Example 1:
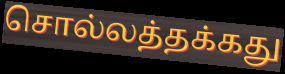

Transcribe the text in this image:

சொல்லத்தக்கது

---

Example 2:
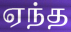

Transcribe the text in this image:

ஏந்த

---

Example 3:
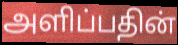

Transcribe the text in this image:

அளிப்பதின்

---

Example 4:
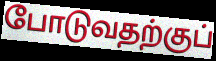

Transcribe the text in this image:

போடுவதற்குப்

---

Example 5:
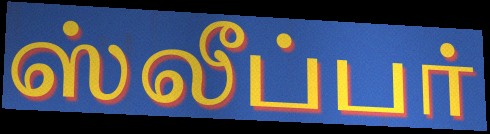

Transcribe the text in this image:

ஸ்லீப்பர்